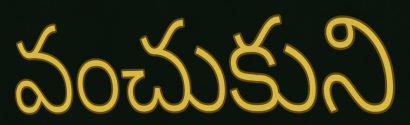
వంచుకుని